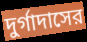
দুর্গাদাসের